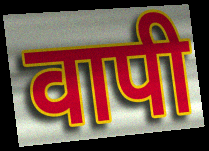
वापी